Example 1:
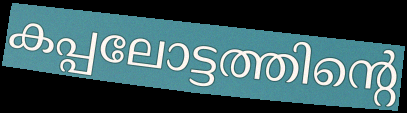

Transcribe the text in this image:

കപ്പലോട്ടത്തിന്റെ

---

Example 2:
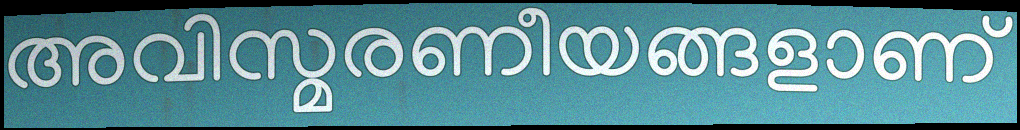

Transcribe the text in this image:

അവിസ്മരണീയങ്ങളാണ്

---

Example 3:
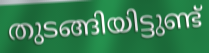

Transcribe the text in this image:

തുടങ്ങിയിട്ടുണ്ട്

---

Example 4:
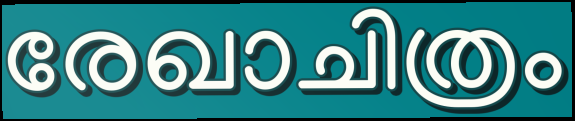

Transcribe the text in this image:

രേഖാചിത്രം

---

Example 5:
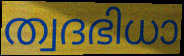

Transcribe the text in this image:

ത്വദഭിധാ